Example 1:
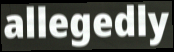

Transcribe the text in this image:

allegedly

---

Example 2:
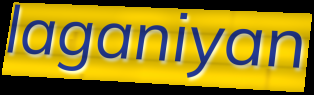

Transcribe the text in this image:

laganiyan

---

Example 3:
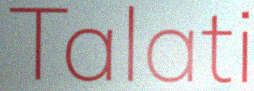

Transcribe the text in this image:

Talati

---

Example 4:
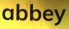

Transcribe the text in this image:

abbey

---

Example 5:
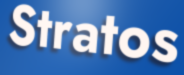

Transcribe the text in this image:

Stratos